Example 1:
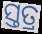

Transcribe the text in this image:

ସ୍ତତ୍ର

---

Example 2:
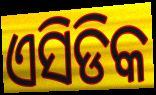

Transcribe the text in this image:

ଏସିଡିକ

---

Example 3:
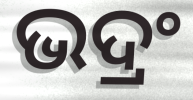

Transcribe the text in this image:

ଭଦ୍ରଂ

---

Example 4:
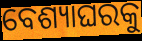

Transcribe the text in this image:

ବେଶ୍ୟାଘରକୁ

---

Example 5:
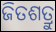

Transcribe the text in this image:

ଜିତଶତ୍ରୁ